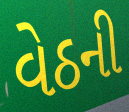
વેઠની